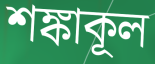
শঙ্কাকূল